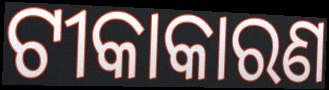
ଟୀକାକାରଣ